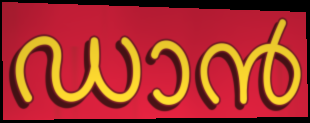
ഡാൻ